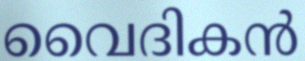
വൈദികൻ